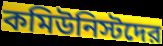
কমিউনিস্টদের